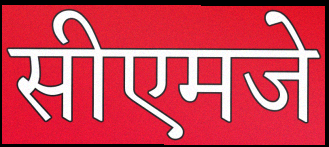
सीएमजे